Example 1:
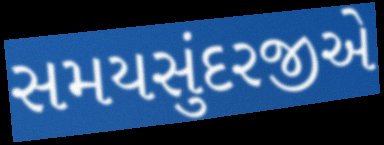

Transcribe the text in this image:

સમયસુંદરજીએ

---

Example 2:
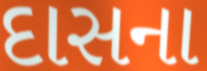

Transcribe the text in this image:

દાસના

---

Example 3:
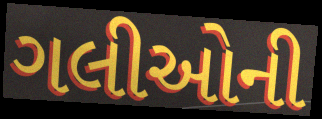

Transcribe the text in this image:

ગલીઓની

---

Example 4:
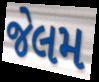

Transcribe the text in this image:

જેલમ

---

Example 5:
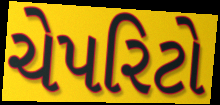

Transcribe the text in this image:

ચેપરિટો